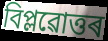
বিপ্লৱোত্তৰ